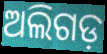
ଅଲିଗଡ଼